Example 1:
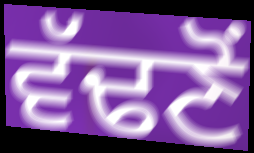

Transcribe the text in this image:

ਵੱਢਣੋਂ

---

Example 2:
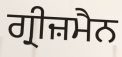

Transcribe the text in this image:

ਗ੍ਰੀਜ਼ਮੈਨ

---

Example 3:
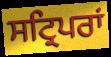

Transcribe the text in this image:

ਸਟ੍ਰਿਪਰਾਂ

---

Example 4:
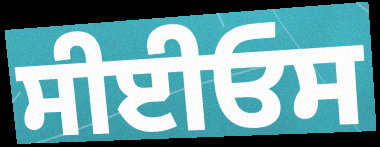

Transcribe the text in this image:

ਸੀਈਓਸ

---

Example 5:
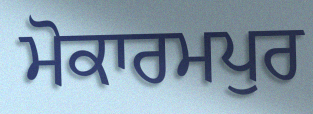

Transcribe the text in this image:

ਮੋਕਾਰਮਪੁਰ